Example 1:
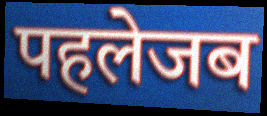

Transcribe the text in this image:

पहलेजब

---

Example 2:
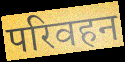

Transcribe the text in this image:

परिवहन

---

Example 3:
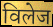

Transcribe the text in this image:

विलेज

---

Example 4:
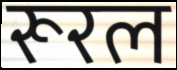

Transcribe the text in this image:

रूरल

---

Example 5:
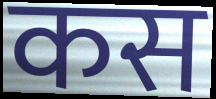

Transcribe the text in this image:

कस